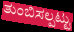
ತುಂಬಿಸಲ್ಪಟ್ಟು